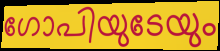
ഗോപിയുടേയും